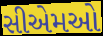
સીએમઓ